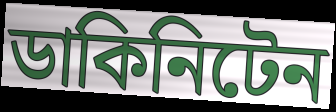
ডাকিনিটেন